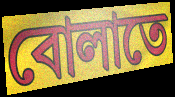
বোলাতে